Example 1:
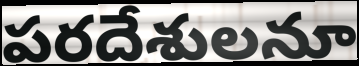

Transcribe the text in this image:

పరదేశులనూ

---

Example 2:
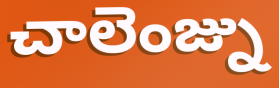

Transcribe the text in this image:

చాలెంజ్ను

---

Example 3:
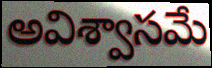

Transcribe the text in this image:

అవిశ్వాసమే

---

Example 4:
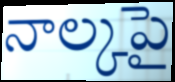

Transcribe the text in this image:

నాల్కపై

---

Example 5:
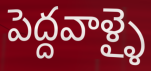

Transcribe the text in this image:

పెద్దవాళ్ళై